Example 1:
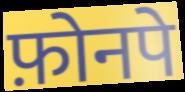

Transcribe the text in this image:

फ़ोनपे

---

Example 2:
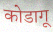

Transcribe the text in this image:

कोडागू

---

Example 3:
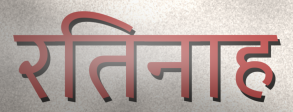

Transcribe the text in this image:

रतिनाह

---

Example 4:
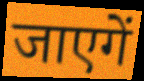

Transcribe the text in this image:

जाएगें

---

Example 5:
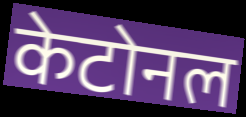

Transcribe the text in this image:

केटोनल